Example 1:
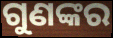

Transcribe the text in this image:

ଗୁଣଙ୍କର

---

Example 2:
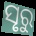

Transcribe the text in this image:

ସୃରୁ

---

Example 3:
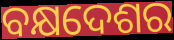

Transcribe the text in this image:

ବକ୍ଷଦେଶର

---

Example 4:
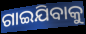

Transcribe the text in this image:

ଗାଇଯିବାକୁ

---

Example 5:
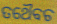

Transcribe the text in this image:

ତଥୈବଚ